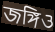
জঙ্গিও